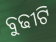
ବୁଢୀଟି